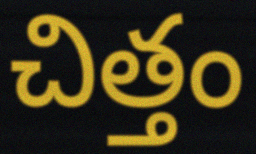
చిత్తం